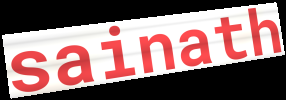
sainath